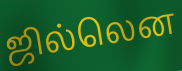
ஜில்லென